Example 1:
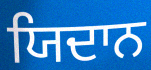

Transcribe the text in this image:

ਯਿਦਾਨ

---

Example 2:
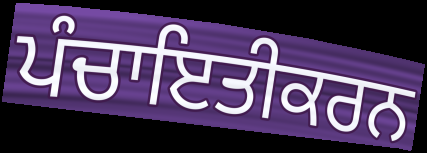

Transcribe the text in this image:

ਪੰਚਾਇਤੀਕਰਨ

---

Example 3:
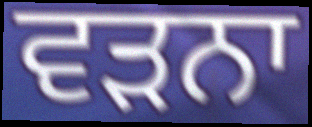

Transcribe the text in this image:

ਵੜਨਾ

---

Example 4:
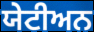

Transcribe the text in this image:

ਯੇਟੀਅਨ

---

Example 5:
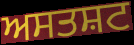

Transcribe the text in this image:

ਅਸਤਸ਼ਟ